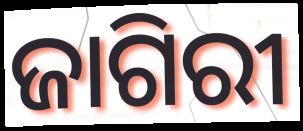
ଜାଗିରୀ